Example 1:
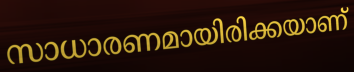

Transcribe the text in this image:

സാധാരണമായിരിക്കയാണ്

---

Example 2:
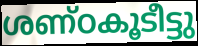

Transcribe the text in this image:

ശണ്ഠകൂടീട്ടു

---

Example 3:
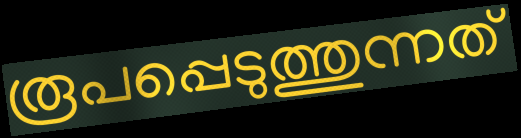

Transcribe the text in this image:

രൂപപ്പെടുത്തുന്നത്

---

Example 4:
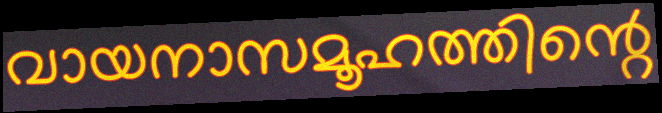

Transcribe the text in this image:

വായനാസമൂഹത്തിന്റെ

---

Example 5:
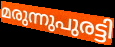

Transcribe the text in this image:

മരുന്നുപുരട്ടി